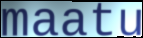
maatu